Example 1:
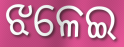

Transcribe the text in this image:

ଝଳେଇ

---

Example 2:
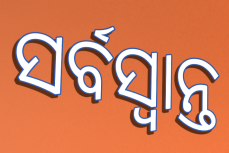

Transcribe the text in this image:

ସର୍ବସ୍ୱାନ୍ତ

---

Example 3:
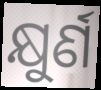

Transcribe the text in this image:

କ୍ଷୁର୍ଣ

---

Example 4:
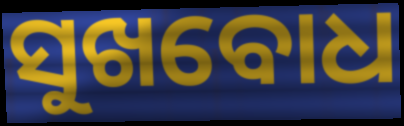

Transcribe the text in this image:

ସୁଖବୋଧ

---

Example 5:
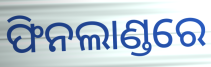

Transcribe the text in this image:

ଫିନଲାଣ୍ଡରେ